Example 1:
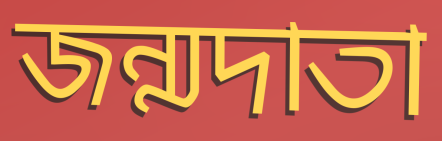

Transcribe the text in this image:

জন্মদাতা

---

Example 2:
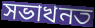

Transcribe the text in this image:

সভাখনত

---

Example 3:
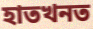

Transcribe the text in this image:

হাতখনত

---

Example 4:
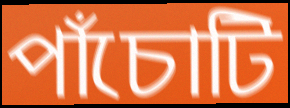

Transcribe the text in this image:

পাঁচোটি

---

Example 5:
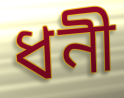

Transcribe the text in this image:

ধনী